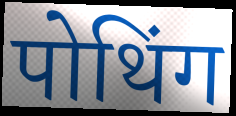
पोथिंग